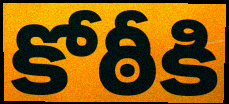
కోఠీకి